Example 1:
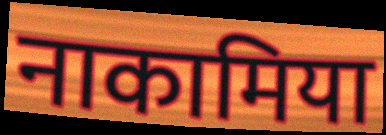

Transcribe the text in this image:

नाकामिया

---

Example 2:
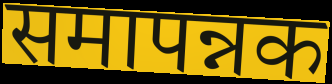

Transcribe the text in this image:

समापन्नक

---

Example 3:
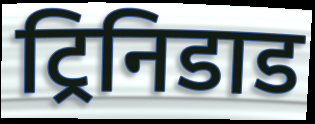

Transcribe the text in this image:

ट्रिनिडाड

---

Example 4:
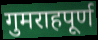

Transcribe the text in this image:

गुमराहपूर्ण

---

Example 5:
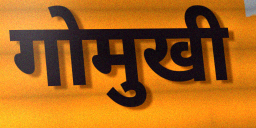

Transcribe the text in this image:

गोमुखी